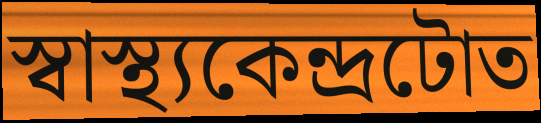
স্বাস্থ্যকেন্দ্ৰটোত